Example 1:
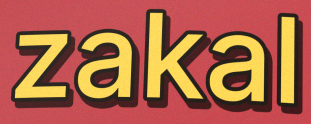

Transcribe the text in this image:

zakal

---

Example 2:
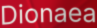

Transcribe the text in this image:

Dionaea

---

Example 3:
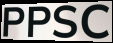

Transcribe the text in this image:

PPSC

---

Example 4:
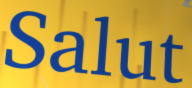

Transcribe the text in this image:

Salut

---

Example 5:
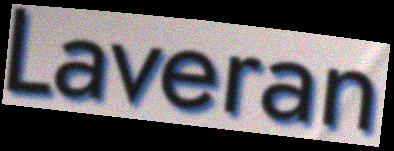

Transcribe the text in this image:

Laveran